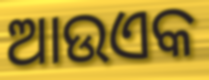
ଆଉଏକ